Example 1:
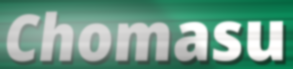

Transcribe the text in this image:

Chomasu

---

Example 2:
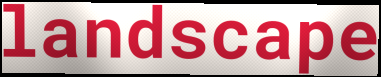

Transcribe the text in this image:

landscape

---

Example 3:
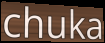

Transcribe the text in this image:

chuka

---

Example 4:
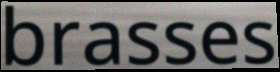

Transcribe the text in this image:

brasses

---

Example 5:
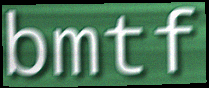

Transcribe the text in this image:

bmtf